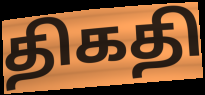
திகதி